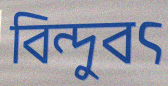
বিন্দুবৎ